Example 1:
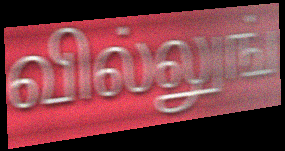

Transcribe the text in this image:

வில்லுங்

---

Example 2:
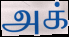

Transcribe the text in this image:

அக்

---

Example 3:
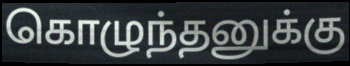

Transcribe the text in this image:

கொழுந்தனுக்கு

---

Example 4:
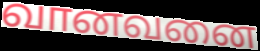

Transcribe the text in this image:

வானவனை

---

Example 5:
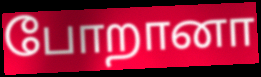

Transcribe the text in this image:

போறானா